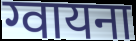
ग्वायना